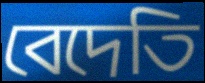
বেদেতি